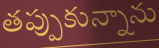
తప్పుకున్నాను